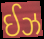
ઈઝ